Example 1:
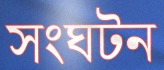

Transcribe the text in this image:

সংঘটন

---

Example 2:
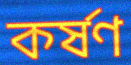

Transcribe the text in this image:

কৰ্ষণ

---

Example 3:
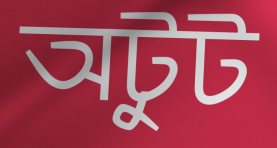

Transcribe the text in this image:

অটুট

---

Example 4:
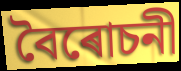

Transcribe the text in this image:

বৈৰোচনী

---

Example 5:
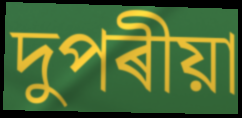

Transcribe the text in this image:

দুপৰীয়া